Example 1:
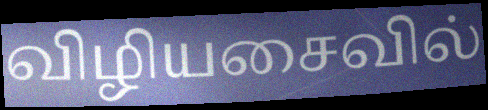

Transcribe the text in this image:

விழியசைவில்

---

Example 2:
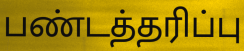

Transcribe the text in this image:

பண்டத்தரிப்பு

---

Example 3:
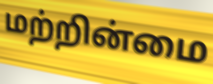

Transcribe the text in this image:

மற்றின்மை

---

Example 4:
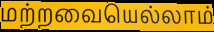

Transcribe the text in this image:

மற்றவையெல்லாம்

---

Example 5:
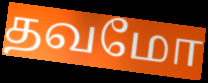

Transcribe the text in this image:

தவமோ